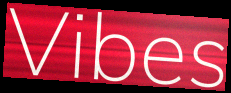
Vibes